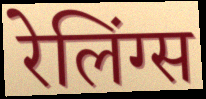
रेलिंग्स